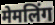
मेमलिंग